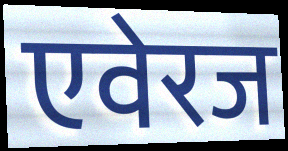
एवेरज